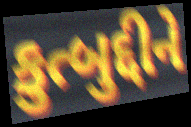
કુત્બુદ્દીને